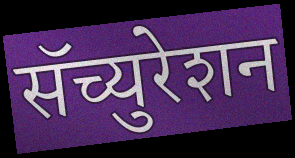
सॅच्युरेशन